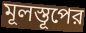
মূলস্তূপের